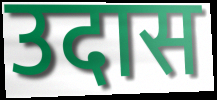
उदास